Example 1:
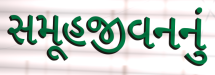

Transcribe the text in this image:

સમૂહજીવનનું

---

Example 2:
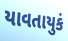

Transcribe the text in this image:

યાવતાયુકં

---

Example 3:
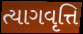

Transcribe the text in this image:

ત્યાગવૃત્તિ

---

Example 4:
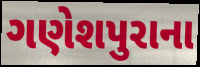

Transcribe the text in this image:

ગણેશપુરાના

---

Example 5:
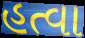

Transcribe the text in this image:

હત્વા